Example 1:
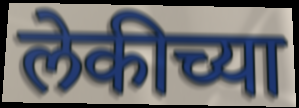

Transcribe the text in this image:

लेकीच्या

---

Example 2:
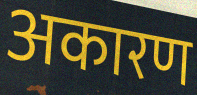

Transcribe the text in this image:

अकारण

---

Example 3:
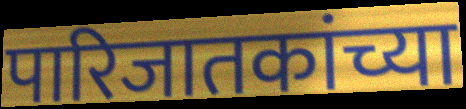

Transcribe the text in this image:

पारिजातकांच्या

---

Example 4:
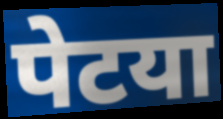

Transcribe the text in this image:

पेटया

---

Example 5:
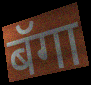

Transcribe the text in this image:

बॅगा